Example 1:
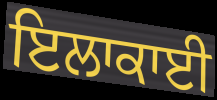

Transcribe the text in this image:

ਇਲਾਕਾਈ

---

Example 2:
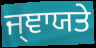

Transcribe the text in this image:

ਜ੍ਞਾਯਤੇ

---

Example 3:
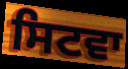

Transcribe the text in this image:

ਸਿਟਵਾ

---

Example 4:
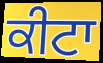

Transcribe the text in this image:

ਕੀਟਾ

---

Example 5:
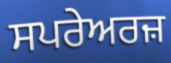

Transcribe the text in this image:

ਸਪਰੇਅਰਜ਼